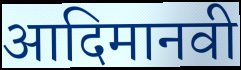
आदिमानवी